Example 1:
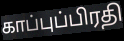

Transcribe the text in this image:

காப்புப்பிரதி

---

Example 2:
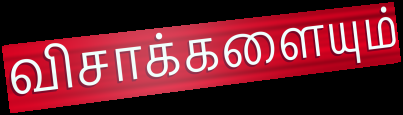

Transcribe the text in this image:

விசாக்களையும்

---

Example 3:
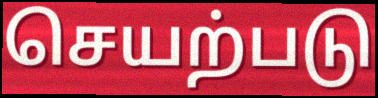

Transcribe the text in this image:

செயற்படு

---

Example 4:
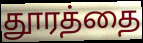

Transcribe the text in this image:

தூரத்தை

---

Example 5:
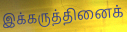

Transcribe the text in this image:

இக்கருத்தினைக்